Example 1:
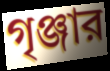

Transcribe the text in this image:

গৃঞ্জার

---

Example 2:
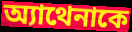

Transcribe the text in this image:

অ্যাথেনাকে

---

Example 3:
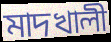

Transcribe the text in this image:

মাদখালী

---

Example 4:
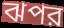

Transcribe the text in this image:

ঝপর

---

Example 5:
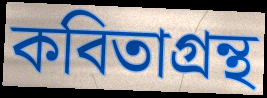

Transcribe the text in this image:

কবিতাগ্রন্থ